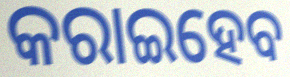
କରାଇହେବ